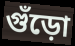
গুঁড়ো